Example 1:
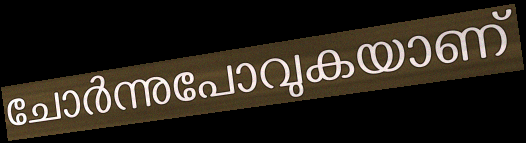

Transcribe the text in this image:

ചോർന്നുപോവുകയാണ്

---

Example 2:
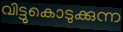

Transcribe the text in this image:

വിട്ടുകൊടുക്കുന്ന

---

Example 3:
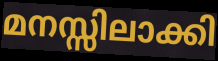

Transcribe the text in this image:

മനസ്സിലാക്കി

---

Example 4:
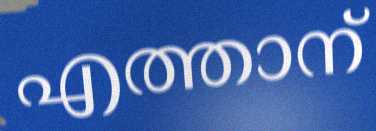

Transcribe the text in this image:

എത്താന്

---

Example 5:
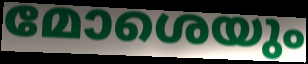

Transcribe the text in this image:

മോശെയും